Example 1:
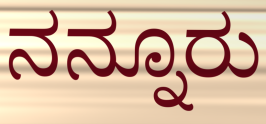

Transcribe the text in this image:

ನನ್ನೂರು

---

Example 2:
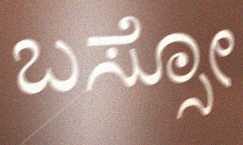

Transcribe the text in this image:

ಬಸ್ಸೋ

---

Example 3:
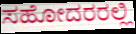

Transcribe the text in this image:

ಸಹೋದರರಲ್ಲಿ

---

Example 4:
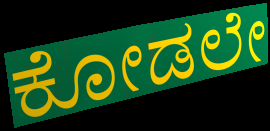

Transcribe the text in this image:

ಕೋಡಲೇ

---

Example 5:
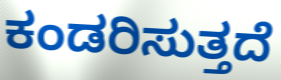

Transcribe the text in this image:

ಕಂಡರಿಸುತ್ತದೆ